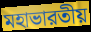
মহাভারতীয়